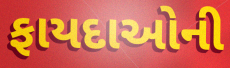
ફાયદાઓની